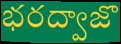
భరద్వాజొ